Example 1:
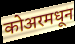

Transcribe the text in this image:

कोअरमधून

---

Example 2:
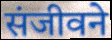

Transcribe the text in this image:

संजीवने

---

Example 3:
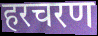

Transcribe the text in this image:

हरचरण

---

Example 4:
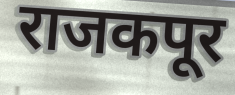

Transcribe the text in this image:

राजकपूर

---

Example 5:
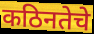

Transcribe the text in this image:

कठिनतेचे